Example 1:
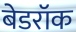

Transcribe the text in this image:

बेडरॉक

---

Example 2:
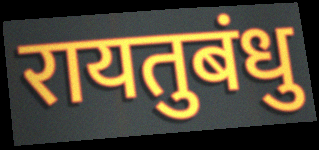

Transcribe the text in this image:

रायतुबंधु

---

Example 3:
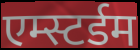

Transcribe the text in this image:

एम्स्टर्डम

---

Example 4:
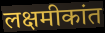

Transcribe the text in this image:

लक्षमीकांत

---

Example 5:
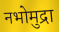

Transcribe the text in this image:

नभोमुद्रा